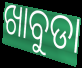
ଖାବୁଡା